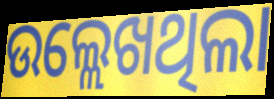
ଉଲ୍ଲେଖଥିଲା